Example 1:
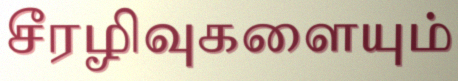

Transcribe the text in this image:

சீரழிவுகளையும்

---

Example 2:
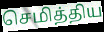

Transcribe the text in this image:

செமித்திய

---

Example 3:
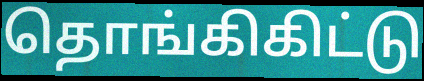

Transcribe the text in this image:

தொங்கிகிட்டு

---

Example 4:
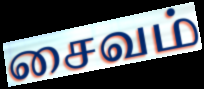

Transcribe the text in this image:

சைவம்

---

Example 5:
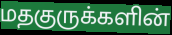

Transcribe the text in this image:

மதகுருக்களின்